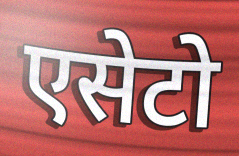
एसेटो